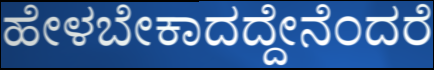
ಹೇಳಬೇಕಾದದ್ದೇನೆಂದರೆ